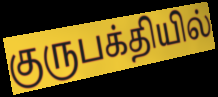
குருபக்தியில்